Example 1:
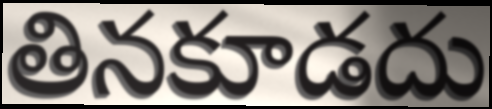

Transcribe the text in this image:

తినకూడదు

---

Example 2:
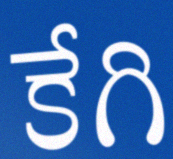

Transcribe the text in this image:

కేగి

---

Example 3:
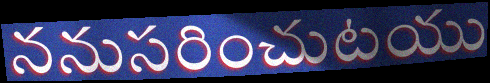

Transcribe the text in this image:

ననుసరించుటయు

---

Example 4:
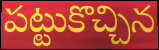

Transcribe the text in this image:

పట్టుకొచ్చిన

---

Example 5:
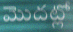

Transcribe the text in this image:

మొదట్లో